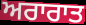
ਅਰਾਰਾਤ